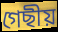
গেছীয়